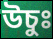
উচুঃ